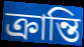
ক্রান্তি